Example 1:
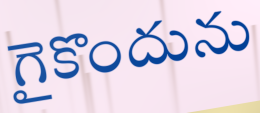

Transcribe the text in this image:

గైకొందును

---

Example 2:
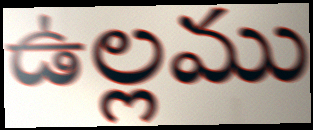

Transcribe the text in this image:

ఉల్లము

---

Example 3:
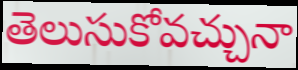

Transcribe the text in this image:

తెలుసుకోవచ్చునా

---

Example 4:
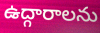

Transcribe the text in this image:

ఉద్గారాలను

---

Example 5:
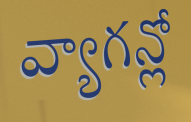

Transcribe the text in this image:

వ్యాగన్లో